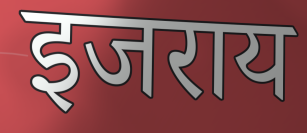
इजराय